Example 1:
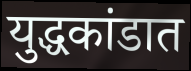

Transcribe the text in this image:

युद्धकांडात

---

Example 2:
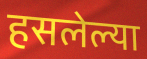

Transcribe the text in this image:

हसलेल्या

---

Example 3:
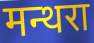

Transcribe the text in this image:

मन्थरा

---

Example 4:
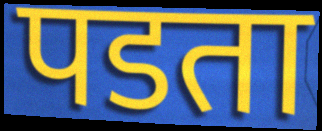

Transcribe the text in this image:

पडता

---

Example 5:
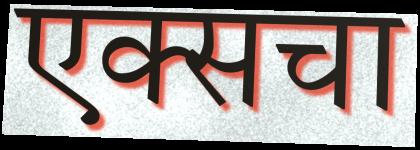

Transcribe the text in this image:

एक्सचा